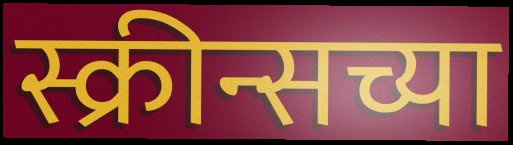
स्क्रीन्सच्या